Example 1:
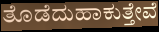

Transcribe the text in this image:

ತೊಡೆದುಹಾಕುತ್ತೇವೆ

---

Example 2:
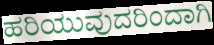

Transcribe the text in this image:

ಹರಿಯುವುದರಿಂದಾಗಿ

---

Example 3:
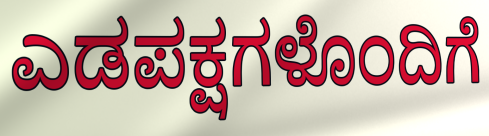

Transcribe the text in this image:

ಎಡಪಕ್ಷಗಳೊಂದಿಗೆ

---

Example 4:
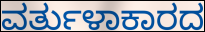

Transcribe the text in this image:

ವರ್ತುಳಾಕಾರದ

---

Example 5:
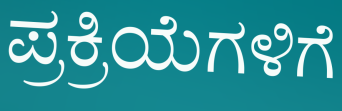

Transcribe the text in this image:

ಪ್ರಕ್ರಿಯೆಗಳಿಗೆ